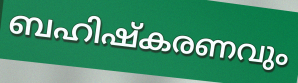
ബഹിഷ്കരണവും